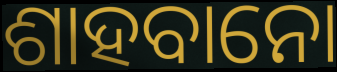
ଶାହବାନୋ